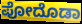
ಪೋದೊಡಾ